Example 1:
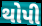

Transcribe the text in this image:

થોપી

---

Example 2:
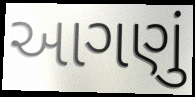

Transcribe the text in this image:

આગણું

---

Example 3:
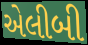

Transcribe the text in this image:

એલીબી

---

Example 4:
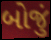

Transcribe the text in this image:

બોજું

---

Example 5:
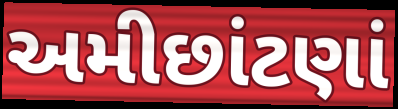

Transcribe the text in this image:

અમીછાંટણાં